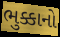
ભુક્કાનો